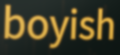
boyish